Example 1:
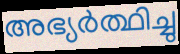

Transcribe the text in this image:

അഭ്യർത്ഥിച്ചു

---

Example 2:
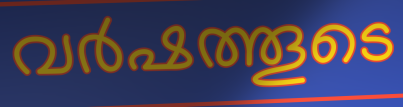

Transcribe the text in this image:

വർഷത്തൂടെ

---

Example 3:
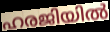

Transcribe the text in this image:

ഹരജിയിൽ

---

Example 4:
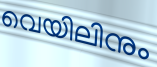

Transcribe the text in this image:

വെയിലിനും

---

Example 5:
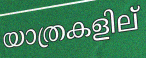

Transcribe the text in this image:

യാത്രകളില്